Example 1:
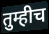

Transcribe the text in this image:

तुम्हीच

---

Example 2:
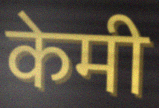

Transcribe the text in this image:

केमी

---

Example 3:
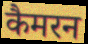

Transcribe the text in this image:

कैमरन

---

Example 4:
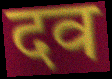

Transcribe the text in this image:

दव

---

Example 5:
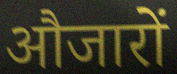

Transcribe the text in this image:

औजारों